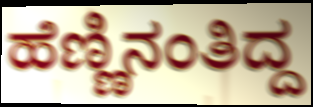
ಹೆಣ್ಣಿನಂತಿದ್ದ